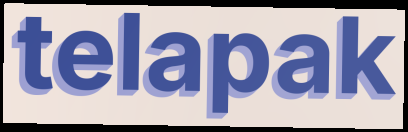
telapak